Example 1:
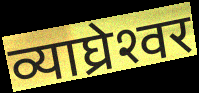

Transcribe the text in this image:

व्याघ्रेश्वर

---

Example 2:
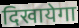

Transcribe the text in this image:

दिखायेगा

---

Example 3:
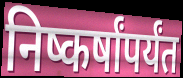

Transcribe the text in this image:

निष्कर्षांपर्यंत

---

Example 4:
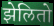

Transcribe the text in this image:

झेलितो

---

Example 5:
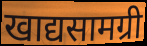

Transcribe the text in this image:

खाद्यसामग्री